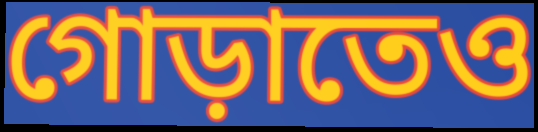
গোড়াতেও